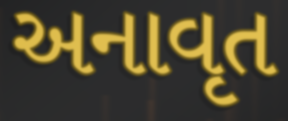
અનાવૃત